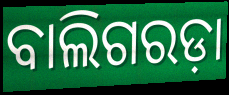
ବାଲିଗରଡ଼ା